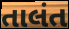
તાલંત